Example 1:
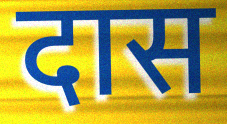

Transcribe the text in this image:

दास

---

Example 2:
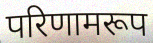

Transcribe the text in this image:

परिणामरूप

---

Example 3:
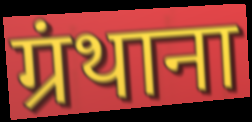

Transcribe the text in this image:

ग्रंथाना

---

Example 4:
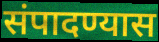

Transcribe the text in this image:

संपादण्यास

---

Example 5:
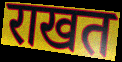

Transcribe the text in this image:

राखत